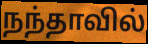
நந்தாவில்